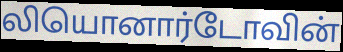
லியொனார்டோவின்